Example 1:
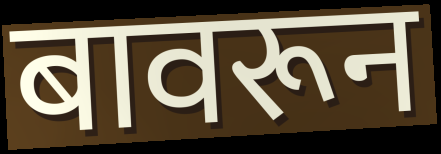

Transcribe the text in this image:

बावरून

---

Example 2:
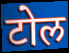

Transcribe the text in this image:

टोल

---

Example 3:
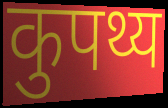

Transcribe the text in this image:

कुपथ्य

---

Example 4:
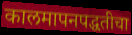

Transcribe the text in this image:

कालमापनपद्धतीचा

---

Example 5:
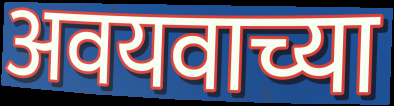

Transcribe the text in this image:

अवयवाच्या